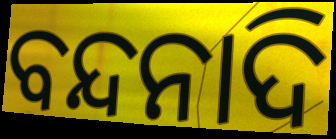
ବନ୍ଦନାଦି